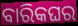
ବାରିକଘର